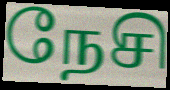
நேசி